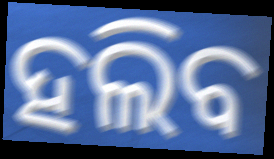
ହଲିବ